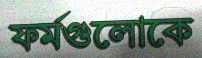
ফর্মগুলোকে